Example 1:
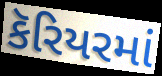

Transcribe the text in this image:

કૅરિયરમાં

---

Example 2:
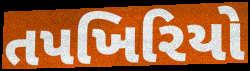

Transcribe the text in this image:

તપખિરિયો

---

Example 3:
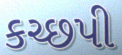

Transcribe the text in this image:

કચ્છપી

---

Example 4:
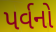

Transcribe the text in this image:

પર્વનો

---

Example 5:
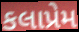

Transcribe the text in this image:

કલાપ્રેમ